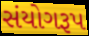
સંયોગરૂપ